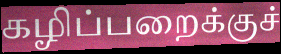
கழிப்பறைக்குச்